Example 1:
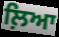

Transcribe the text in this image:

ਲ਼ਿਆ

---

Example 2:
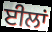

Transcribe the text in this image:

ਈਲਾਂ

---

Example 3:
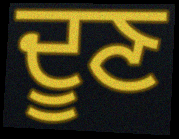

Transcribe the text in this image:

ਦੂਣ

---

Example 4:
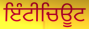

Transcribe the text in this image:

ਇੰਟੀਚਿਊਟ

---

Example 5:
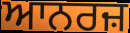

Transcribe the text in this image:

ਆਨਰਜ਼